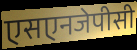
एसएनजेपीसी